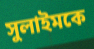
সুলাইমকে